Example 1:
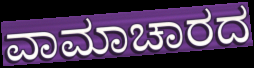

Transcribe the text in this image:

ವಾಮಾಚಾರದ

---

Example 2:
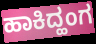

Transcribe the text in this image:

ಹಾಕಿದ್ಹಂಗ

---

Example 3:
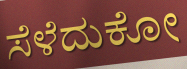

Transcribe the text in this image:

ಸೆಳೆದುಕೋ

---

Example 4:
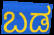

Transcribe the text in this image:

ಬಡ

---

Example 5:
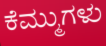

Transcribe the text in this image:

ಕೆಮ್ಮುಗಳು